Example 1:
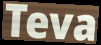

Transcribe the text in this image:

Teva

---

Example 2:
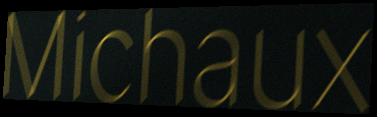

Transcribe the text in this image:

Michaux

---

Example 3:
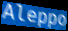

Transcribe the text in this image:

Aleppo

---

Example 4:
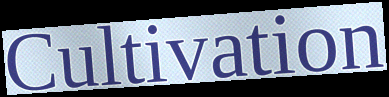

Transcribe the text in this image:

Cultivation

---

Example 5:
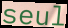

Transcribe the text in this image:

seul